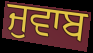
ਜੁਵਾਬ